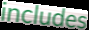
includes